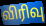
விரிவு